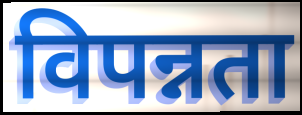
विपन्नता